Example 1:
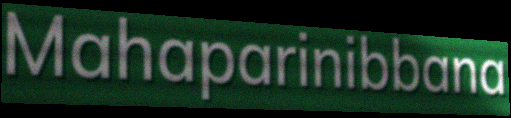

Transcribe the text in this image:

Mahaparinibbana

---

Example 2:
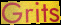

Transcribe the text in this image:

Grits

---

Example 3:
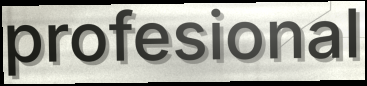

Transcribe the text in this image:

profesional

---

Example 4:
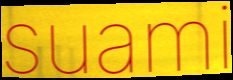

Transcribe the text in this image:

suami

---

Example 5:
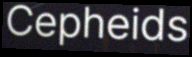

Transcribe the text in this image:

Cepheids